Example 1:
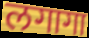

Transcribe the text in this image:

लगागा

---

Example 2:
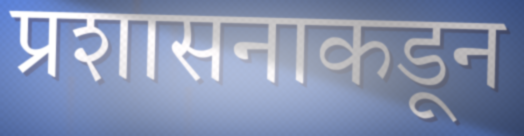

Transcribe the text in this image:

प्रशासनाकडून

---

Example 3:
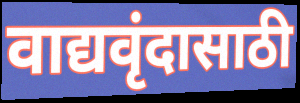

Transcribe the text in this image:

वाद्यवृंदासाठी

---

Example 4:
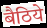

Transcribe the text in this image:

बैठिये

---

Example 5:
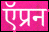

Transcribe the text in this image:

ऍप्रन